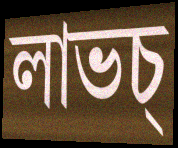
লাভচ্